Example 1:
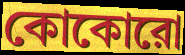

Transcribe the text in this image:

কোকোরো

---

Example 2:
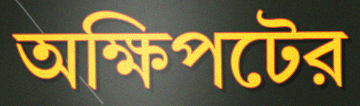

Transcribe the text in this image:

অক্ষিপটের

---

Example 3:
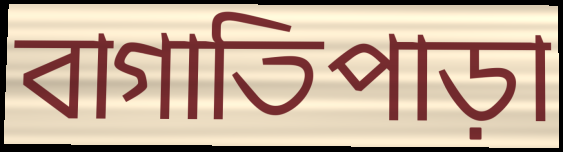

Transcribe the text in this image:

বাগাতিপাড়া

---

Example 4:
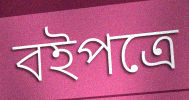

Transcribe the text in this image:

বইপত্রে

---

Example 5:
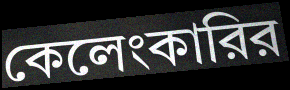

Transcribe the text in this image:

কেলেংকারির